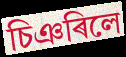
চিঞৰিলে